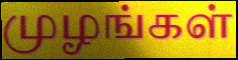
முழங்கள்